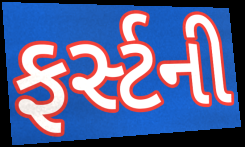
ફર્સ્ટની